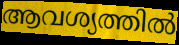
ആവശ്യത്തിൽ